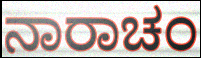
ನಾರಾಚಂ